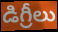
డిగ్రీలు